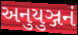
અનુયુઞ્જનં